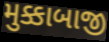
મુક્કાબાજી